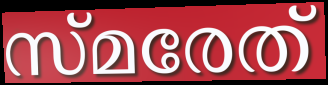
സ്മരേത്